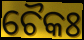
ଚୈକଃ